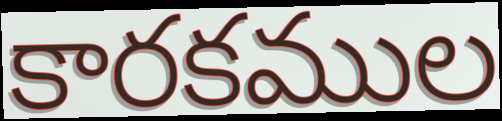
కారకముల